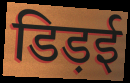
डिड़ई